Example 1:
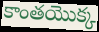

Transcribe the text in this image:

కాంతయొక్క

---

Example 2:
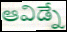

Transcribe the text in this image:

ఆవిడ్నే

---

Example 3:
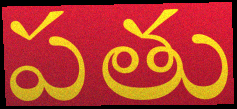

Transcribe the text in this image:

పతు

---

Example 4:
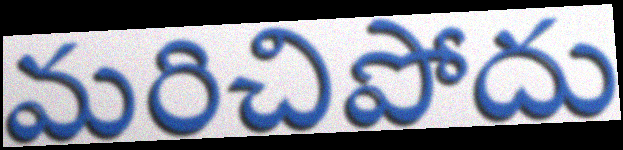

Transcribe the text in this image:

మరిచిపోదు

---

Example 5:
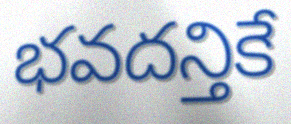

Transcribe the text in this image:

భవదన్తికే